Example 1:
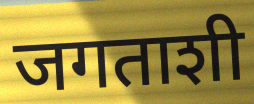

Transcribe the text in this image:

जगताशी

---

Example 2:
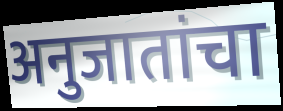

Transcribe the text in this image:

अनुजातांचा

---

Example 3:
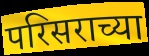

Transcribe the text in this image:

परिसराच्या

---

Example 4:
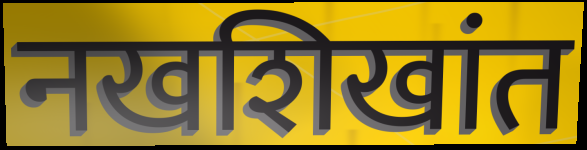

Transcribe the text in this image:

नखशिखांत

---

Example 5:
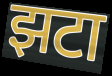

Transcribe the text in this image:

झटा